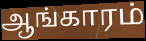
ஆங்காரம்